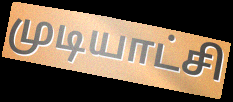
முடியாட்சி